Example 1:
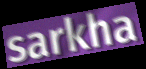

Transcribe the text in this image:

sarkha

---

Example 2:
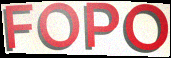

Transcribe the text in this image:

FOPO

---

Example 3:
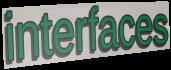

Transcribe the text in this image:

interfaces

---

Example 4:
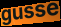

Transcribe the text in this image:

gusse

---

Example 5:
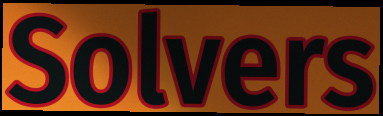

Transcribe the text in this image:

Solvers